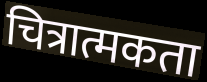
चित्रात्मकता